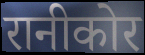
रानीकोर